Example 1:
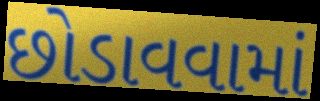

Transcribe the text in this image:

છોડાવવામાં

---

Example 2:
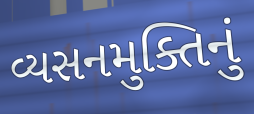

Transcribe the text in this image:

વ્યસનમુક્તિનું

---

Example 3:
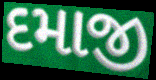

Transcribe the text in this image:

દમાજી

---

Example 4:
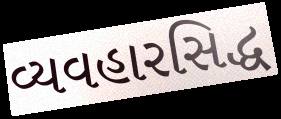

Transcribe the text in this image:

વ્યવહારસિદ્ધ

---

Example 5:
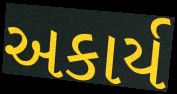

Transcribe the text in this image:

અકાર્ય